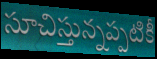
సూచిస్తున్నప్పటికీ